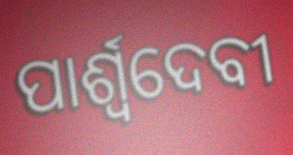
ପାର୍ଶ୍ୱଦେବୀ